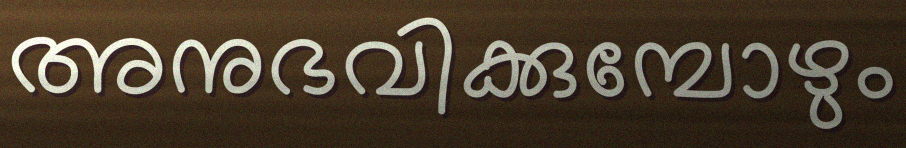
അനുഭവിക്കുമ്പോഴും